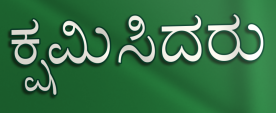
ಕ್ಷಮಿಸಿದರು